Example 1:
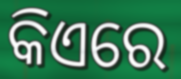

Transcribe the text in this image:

କିଏରେ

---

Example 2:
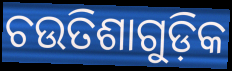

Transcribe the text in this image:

ଚଉତିଶାଗୁଡ଼ିକ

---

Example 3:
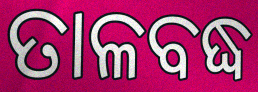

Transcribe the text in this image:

ତାଳବଦ୍ଧ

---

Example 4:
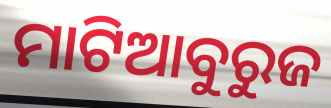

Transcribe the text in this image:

ମାଟିଆବୁରୁଜ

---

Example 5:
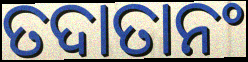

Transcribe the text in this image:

ତଦାତାନଂ